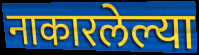
नाकारलेल्या